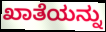
ಖಾತೆಯನ್ನು